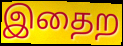
இதைற